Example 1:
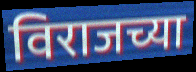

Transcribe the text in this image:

विराजच्या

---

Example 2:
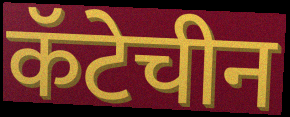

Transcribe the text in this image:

कॅटेचीन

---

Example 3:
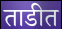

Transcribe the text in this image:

ताडीत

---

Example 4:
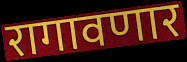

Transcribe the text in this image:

रागावणार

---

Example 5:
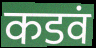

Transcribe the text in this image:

कडवं